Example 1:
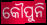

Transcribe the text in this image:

କୌପୁନି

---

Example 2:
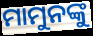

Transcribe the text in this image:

ମାମୁନଙ୍କୁ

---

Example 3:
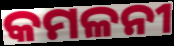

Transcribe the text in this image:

କମଳନୀ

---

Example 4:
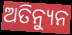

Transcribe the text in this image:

ଅତିନ୍ୟୁନ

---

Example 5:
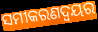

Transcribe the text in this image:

ସମୀକରଣଦ୍ଵୟର